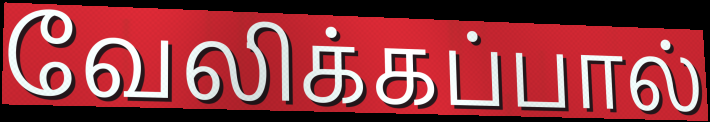
வேலிக்கப்பால்